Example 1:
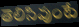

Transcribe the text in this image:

తెలిసివుంటే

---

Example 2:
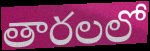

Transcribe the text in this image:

తారలలో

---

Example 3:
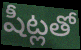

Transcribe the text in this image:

షీట్లతో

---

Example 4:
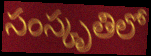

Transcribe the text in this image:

సంస్కృతిలో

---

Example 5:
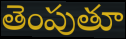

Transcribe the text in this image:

తెంపుతూ